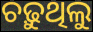
ଚଢ଼ୁଥିଲୁ